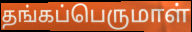
தங்கப்பெருமாள்